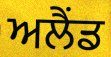
ਅਲੈਂਡ